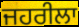
ਜਹਰੀਲਾ